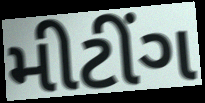
મીટીંગ